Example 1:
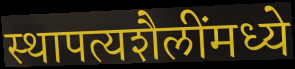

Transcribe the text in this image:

स्थापत्यशैलींमध्ये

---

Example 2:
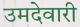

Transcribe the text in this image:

उमदेवारी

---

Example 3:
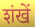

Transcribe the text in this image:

शंखें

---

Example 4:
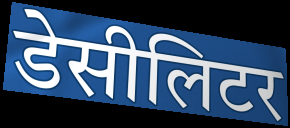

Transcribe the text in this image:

डेसीलिटर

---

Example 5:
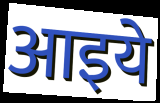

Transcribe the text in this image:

आइये